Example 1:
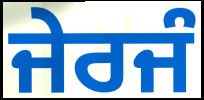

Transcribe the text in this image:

ਜੇਰਜੰ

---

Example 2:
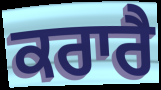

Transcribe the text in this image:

ਕਰਾਰੈ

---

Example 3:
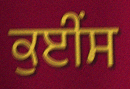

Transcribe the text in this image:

ਕੁਈਂਸ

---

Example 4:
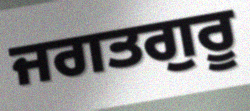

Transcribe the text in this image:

ਜਗਤਗੁਰੂ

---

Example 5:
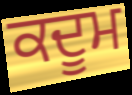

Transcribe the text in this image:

ਕਦੂਮ